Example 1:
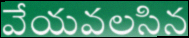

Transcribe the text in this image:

వేయవలసిన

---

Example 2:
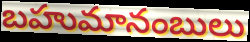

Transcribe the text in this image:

బహుమానంబులు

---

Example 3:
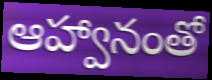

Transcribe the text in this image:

ఆహ్వానంతో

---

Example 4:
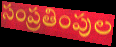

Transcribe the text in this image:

సంప్రతింపుల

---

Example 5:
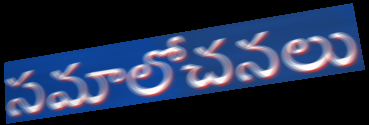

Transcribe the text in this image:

సమాలోచనలు